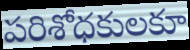
పరిశోధకులకూ